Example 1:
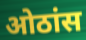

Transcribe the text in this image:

ओठांस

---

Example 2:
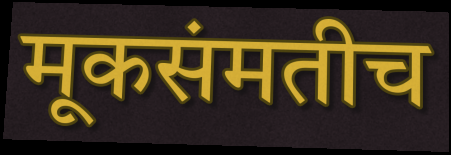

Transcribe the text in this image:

मूकसंमतीच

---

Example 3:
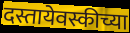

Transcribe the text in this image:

दस्तायेवस्कीच्या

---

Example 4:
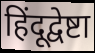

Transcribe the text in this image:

हिंदूद्वेष्टा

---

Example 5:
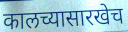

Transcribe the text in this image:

कालच्यासारखेच